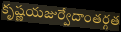
కృష్ణయజుర్వేదాంతర్గత